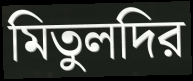
মিতুলদির